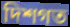
দিশগত